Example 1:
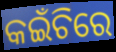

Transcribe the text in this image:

କଇଁଚିରେ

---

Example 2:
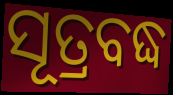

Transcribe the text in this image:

ସୂତ୍ରବଦ୍ଧ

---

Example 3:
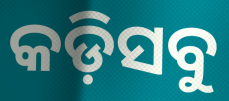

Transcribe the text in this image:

କଡ଼ିସବୁ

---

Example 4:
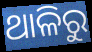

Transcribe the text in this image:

ଥାଳିରୁ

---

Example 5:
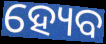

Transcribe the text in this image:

ହ୍ୟେବ